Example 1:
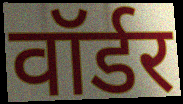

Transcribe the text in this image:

वॉर्डर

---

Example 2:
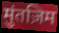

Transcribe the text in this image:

मुंतज़िम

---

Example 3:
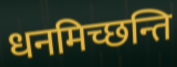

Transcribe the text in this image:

धनमिच्छन्ति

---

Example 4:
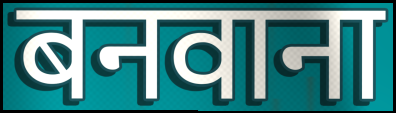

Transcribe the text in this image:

बनवाना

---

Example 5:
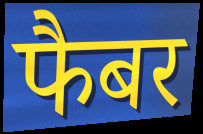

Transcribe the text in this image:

फैबर